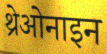
थ्रेओनाइन